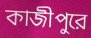
কাজীপুরে